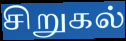
சிறுகல்